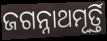
ଜଗନ୍ନାଥମୂର୍ତ୍ତି